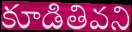
కూడితివని